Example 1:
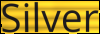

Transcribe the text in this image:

Silver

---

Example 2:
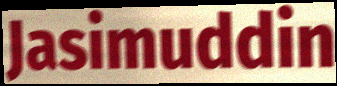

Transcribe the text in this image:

Jasimuddin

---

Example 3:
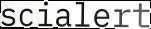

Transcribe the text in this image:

scialert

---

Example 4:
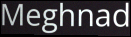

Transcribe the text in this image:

Meghnad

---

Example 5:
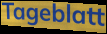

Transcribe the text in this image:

Tageblatt